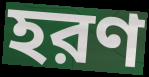
হরণ